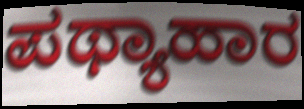
ಪಥ್ಯಾಹಾರ